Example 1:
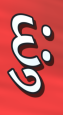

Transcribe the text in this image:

દુઃ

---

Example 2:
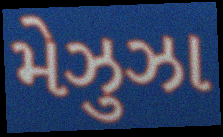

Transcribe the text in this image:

મેઝુઝા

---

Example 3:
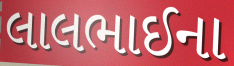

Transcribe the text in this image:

લાલભાઈના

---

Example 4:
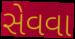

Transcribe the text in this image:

સેવવા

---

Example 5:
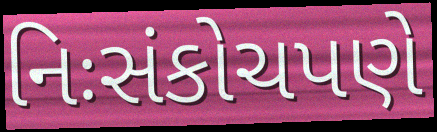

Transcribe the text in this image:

નિઃસંકોચપણે